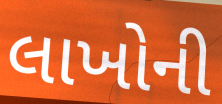
લાખોની